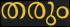
തരും